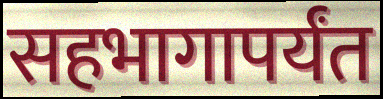
सहभागापर्यंत